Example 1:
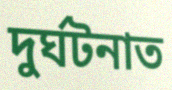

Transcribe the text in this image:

দুৰ্ঘটনাত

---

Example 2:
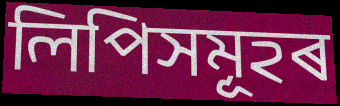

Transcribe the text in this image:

লিপিসমূহৰ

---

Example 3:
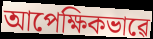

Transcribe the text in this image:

আপেক্ষিকভাৱে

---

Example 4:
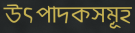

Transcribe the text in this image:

উৎপাদকসমূহ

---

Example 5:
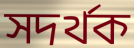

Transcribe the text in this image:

সদৰ্থক